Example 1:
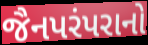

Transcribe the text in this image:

જૈનપરંપરાનો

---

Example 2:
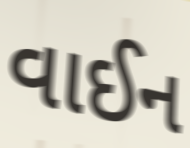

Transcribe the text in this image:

વાઈન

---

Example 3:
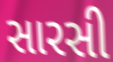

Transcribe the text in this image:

સારસી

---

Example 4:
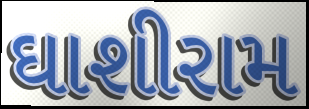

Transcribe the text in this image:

ઘાશીરામ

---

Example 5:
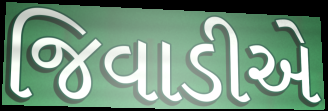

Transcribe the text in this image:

જિવાડીએ